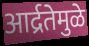
आर्द्रतेमुळे